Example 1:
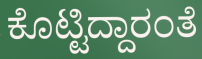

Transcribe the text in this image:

ಕೊಟ್ಟಿದ್ದಾರಂತೆ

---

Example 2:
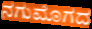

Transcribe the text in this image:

ನಗುಮೊಗದ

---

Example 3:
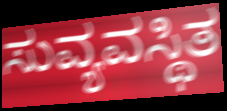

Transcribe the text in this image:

ಸುವ್ಯವಸ್ಥಿತ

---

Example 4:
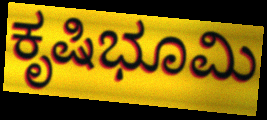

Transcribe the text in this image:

ಕೃಷಿಭೂಮಿ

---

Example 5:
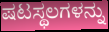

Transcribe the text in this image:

ಷಟಸ್ಥಲಗಳನ್ನು